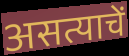
असत्याचें